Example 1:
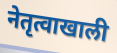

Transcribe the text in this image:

नेतृत्वाखाली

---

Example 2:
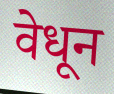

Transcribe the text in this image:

वेधून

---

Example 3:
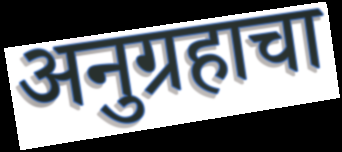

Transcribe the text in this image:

अनुग्रहाचा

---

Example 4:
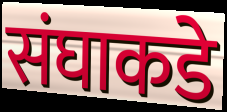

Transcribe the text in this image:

संघाकडे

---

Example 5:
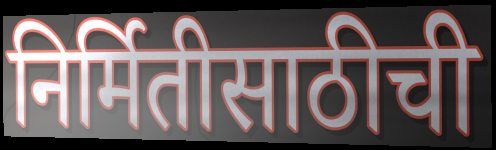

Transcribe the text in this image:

निर्मितीसाठीची